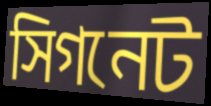
সিগনেট